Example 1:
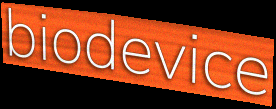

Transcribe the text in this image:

biodevice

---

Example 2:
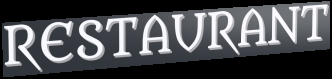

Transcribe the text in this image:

RESTAURANT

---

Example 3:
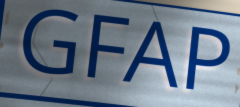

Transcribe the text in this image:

GFAP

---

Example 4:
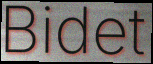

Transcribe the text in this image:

Bidet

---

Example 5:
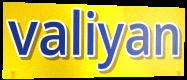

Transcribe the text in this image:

valiyan